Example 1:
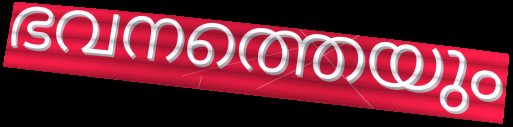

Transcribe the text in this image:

ഭവനത്തെയും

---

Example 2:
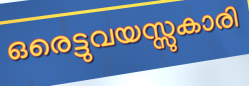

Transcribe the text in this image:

ഒരെട്ടുവയസ്സുകാരി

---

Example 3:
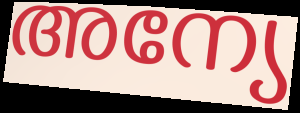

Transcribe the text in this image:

അന്യേ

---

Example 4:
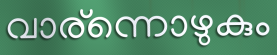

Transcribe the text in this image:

വാര്ന്നൊഴുകും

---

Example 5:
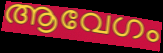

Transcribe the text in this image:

ആവേഗം